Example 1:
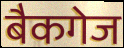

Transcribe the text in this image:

बैकगेज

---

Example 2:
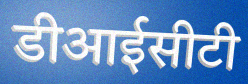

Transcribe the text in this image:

डीआईसीटी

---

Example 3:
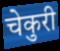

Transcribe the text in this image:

चेकुरी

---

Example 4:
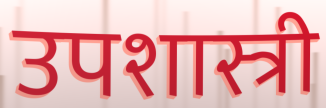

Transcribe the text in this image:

उपशास्त्री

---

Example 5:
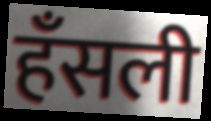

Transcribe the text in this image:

हँसली